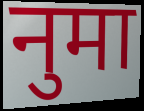
नुमा